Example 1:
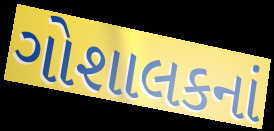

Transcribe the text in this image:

ગોશાલકનાં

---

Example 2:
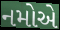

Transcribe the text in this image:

નમોએ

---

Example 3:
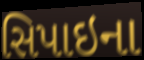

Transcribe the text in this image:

સિપાઇના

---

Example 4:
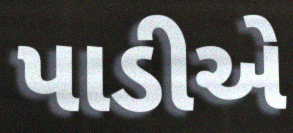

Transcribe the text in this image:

પાડીએ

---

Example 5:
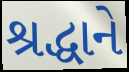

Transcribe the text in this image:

શ્રદ્ધાને